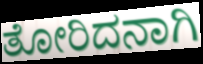
ತೋರಿದನಾಗಿ